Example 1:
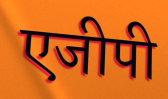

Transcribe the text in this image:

एजीपी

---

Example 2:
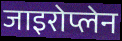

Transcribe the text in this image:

जाइरोप्लेन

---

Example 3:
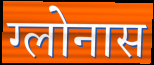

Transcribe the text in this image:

ग्लोनास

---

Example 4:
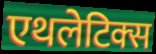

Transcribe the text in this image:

एथलेटिक्‍स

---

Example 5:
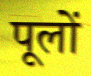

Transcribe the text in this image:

पूलों